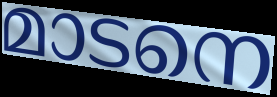
മാടനെ